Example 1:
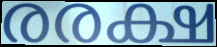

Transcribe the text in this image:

രരക്ഷ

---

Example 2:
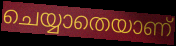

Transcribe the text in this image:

ചെയ്യാതെയാണ്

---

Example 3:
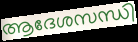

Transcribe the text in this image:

ആദേശസന്ധി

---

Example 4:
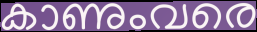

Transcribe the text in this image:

കാണുംവരെ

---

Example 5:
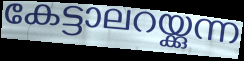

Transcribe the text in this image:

കേട്ടാലറയ്ക്കുന്ന